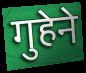
गुहेने